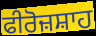
ਫੀਰੋਜ਼ਸ਼ਾਹ